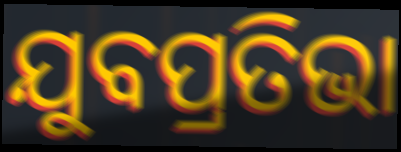
ଯୁବପ୍ରତିଭା